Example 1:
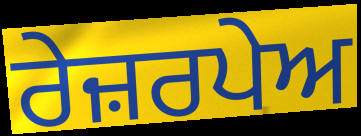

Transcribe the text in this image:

ਰੇਜ਼ਰਪੇਅ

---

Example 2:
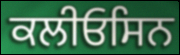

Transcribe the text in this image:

ਕਲੀਓਸਿਨ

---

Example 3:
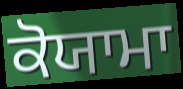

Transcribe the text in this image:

ਕੋਯਾਮਾ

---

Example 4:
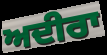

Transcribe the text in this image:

ਅਦੀਰਾ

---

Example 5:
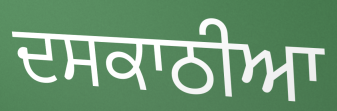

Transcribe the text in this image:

ਦਸਕਾਠੀਆ